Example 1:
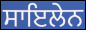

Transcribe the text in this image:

ਸਾਇਲੇਨ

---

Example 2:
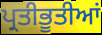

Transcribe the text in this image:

ਪ੍ਰਤੀਭੂਤੀਆਂ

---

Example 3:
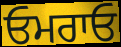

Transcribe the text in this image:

ਓਮਰਾਓ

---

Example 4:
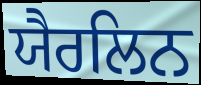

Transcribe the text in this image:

ਯੈਰਲਿਨ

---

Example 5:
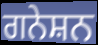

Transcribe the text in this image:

ਗਨੇਸ਼ਨ